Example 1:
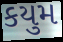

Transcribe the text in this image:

કયુમ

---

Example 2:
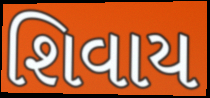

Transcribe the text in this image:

શિવાય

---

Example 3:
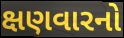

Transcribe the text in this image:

ક્ષણવારનો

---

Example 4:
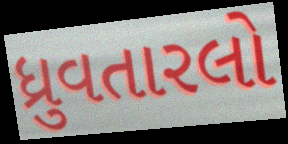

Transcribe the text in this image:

ધ્રુવતારલો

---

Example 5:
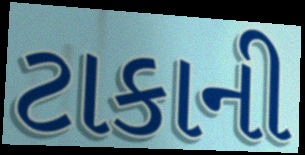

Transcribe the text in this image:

ટાકાની